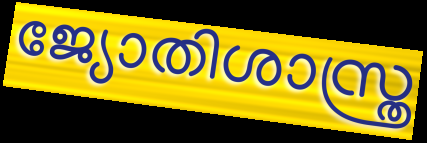
ജ്യോതിശാസ്ത്ര